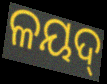
ଳୟଦ୍